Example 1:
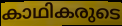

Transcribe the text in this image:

കാഥികരുടെ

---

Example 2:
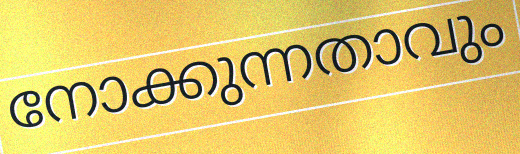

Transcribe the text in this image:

നോക്കുന്നതാവും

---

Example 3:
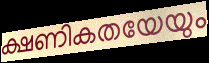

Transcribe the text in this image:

ക്ഷണികതയേയും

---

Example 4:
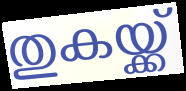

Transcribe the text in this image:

തുകയ്ക്ക്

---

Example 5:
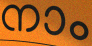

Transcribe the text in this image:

നാം